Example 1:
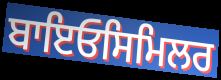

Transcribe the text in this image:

ਬਾਇਓਸਿਮਿਲਰ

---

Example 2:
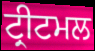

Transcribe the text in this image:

ਟ੍ਰੀਟਮਲ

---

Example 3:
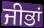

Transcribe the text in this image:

ਜੀਭਾਂ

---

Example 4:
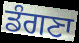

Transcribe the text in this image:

ਡੰਗਣਾ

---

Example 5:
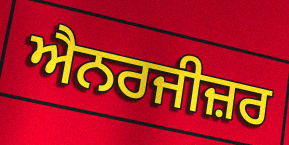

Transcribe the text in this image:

ਐਨਰਜੀਜ਼ਰ